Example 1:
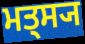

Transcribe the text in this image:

ਮਤ੍ਸ੍ਯ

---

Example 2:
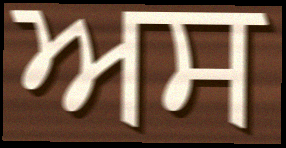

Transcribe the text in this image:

ਅਸ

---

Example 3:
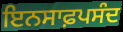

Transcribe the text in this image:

ਇਨਸਾਫ਼ਪਸੰਦ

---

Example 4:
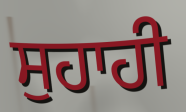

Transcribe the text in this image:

ਸੁਹਾਹੀ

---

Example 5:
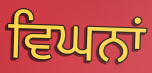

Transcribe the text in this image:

ਵਿਘਨਾਂ